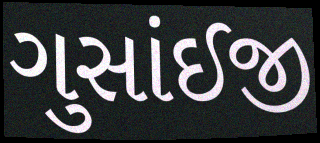
ગુસાંઈજી